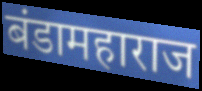
बंडामहाराज